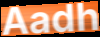
Aadh